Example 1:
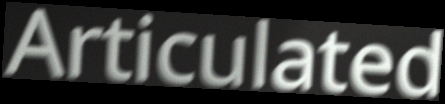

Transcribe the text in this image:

Articulated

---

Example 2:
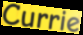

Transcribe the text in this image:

Currie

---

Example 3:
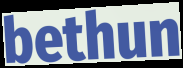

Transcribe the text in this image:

bethun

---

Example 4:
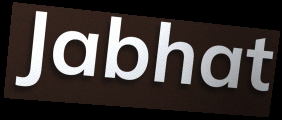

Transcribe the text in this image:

Jabhat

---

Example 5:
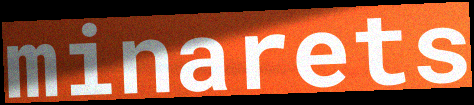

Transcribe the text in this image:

minarets